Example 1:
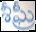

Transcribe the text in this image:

శీఘ్రీ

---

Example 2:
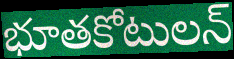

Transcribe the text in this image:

భూతకోటులన్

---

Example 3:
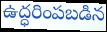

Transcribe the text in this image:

ఉద్ధరింపబడిన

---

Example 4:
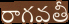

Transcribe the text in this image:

రాగవతీ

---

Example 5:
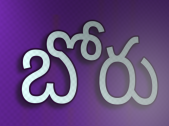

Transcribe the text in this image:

బోరు